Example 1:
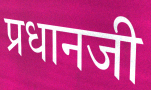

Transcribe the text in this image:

प्रधानजी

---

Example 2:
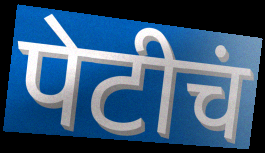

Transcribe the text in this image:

पेटीचं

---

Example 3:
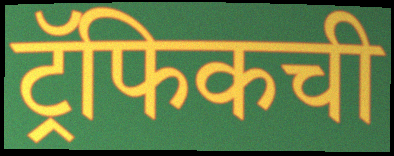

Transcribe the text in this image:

ट्रॅफिकची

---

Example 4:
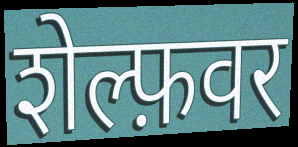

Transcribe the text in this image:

शेल्फ़वर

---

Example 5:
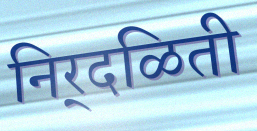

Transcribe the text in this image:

निर्दळिती